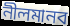
নীলমানব